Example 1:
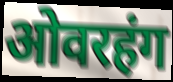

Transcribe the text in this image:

ओवरहंग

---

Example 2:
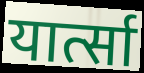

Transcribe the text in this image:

यार्त्सा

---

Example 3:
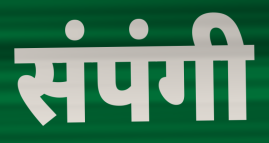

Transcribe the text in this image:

संपंगी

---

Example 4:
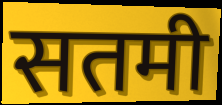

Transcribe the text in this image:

सतमी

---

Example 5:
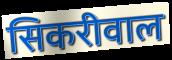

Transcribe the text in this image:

सिकरीवाल